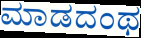
ಮಾಡದಂಥ